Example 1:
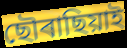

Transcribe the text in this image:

ছৌৰাছিয়াই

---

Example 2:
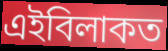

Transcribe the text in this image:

এইবিলাকত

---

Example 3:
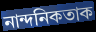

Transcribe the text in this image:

নান্দনিকতাক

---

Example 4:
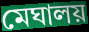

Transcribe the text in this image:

মেঘালয়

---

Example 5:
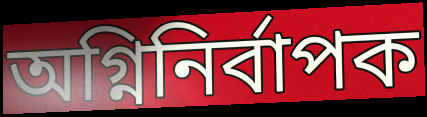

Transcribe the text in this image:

অগ্নিনিৰ্বাপক